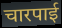
चारपाई